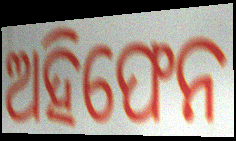
ଅହିଫେନ